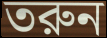
তরুন